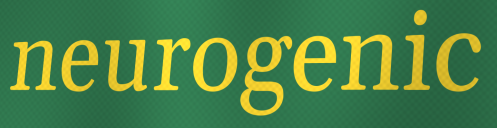
neurogenic